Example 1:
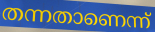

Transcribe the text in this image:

തന്നതാണെന്ന്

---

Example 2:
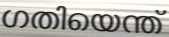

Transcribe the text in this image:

ഗതിയെന്ത്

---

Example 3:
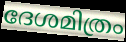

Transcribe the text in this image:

ദേശമിത്രം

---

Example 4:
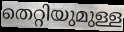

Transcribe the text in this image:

തെറ്റിയുമുള്ള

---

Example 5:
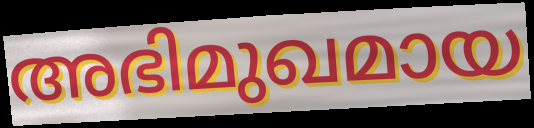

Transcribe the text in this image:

അഭിമുഖമായ